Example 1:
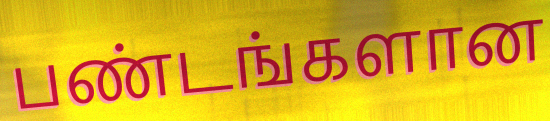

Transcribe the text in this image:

பண்டங்களான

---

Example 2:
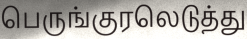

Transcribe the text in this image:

பெருங்குரலெடுத்து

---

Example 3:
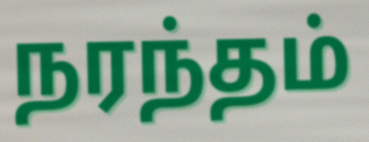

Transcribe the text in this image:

நரந்தம்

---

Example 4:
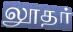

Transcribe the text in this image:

லூதர்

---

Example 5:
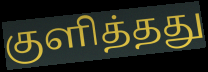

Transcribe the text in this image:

குளித்தது